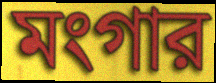
মংগার